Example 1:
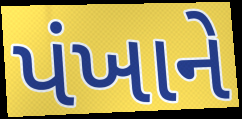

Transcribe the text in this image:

પંખાને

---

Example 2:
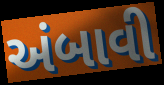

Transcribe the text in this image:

અંબાવી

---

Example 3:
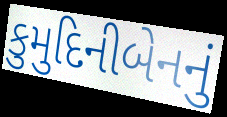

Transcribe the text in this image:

કુમુદિનીબેનનું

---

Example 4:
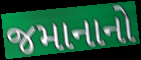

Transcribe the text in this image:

જમાનાનો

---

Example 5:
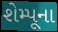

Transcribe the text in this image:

શેમ્પૂના